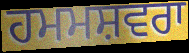
ਹਮਮਸ਼ਵਰਾ